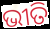
ଭୀତି